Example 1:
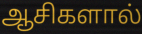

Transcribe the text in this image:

ஆசிகளால்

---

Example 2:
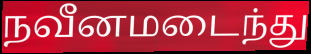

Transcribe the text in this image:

நவீனமடைந்து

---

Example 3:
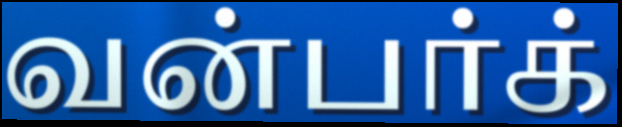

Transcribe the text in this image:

வன்பர்க்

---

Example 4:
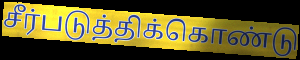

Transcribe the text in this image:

சீர்படுத்திக்கொண்டு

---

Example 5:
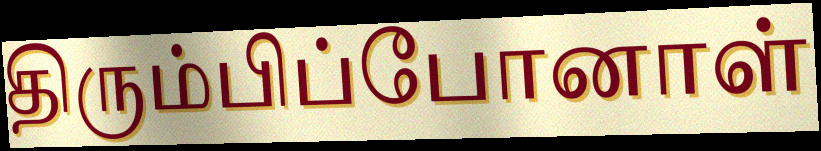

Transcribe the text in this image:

திரும்பிப்போனாள்